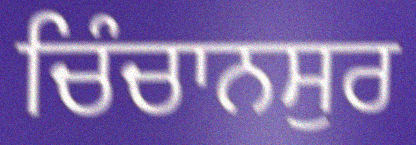
ਚਿੰਚਾਨਸੁਰ